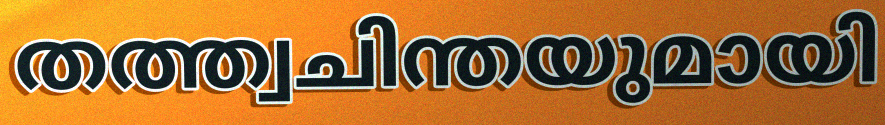
തത്ത്വചിന്തയുമായി